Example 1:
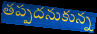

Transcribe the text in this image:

తప్పదనుకున్న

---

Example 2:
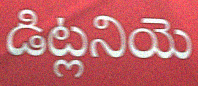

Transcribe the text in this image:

డిట్లనియె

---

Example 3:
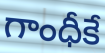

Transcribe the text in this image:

గాంధీకే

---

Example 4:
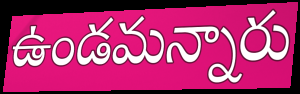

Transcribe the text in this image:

ఉండమన్నారు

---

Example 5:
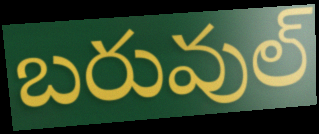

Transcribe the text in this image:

బరువుల్